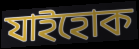
যাইহোক